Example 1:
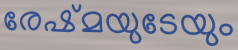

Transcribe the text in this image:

രേഷ്മയുടേയും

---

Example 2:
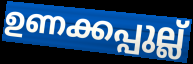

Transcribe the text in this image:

ഉണക്കപ്പുല്ല്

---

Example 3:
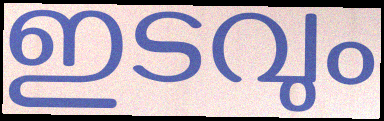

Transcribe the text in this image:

ഇടവും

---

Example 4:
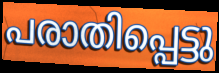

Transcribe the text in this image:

പരാതിപ്പെട്ടു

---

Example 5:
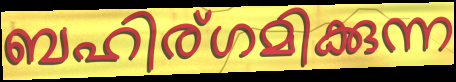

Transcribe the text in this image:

ബഹിര്ഗമിക്കുന്ന